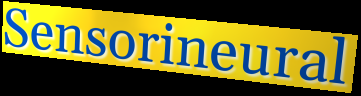
Sensorineural